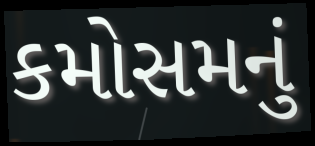
કમોસમનું